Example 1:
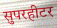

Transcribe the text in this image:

सुपरहीटर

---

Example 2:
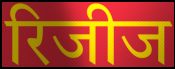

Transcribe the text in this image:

रिजीज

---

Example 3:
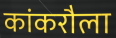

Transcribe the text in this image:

कांकरौला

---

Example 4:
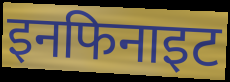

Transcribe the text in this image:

इनफिनाइट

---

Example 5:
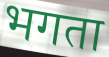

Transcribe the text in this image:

भगता